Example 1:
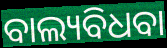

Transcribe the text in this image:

ବାଲ୍ୟବିଧବା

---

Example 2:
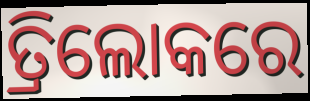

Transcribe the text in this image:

ତ୍ରିଲୋକରେ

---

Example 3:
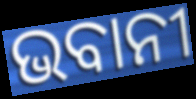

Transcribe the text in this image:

ଭବାନୀ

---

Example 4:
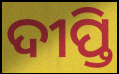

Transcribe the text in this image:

ଦୀପ୍ତି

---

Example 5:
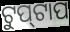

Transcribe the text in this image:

ଟୁପ୍‌ଟାପ